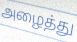
அழைத்து